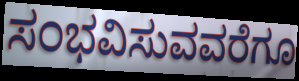
ಸಂಭವಿಸುವವರೆಗೂ